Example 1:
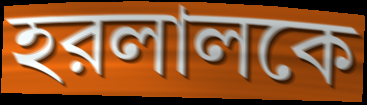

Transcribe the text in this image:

হরলালকে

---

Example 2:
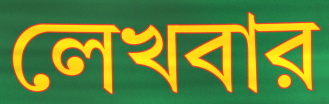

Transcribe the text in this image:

লেখবার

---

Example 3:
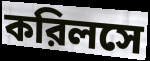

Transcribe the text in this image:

করিলসে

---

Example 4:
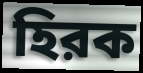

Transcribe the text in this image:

হিরক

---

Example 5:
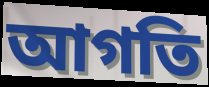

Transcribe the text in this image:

আগতি